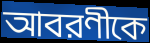
আবরণীকে